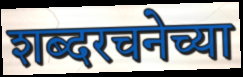
शब्दरचनेच्या